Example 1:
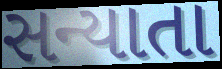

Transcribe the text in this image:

સન્યાતા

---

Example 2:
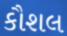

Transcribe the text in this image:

કૌશલ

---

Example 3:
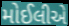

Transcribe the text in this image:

મોઈલીએ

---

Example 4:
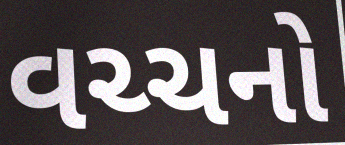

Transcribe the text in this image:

વચ્ચનો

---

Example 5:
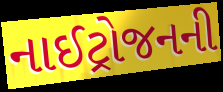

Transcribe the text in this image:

નાઈટ્રોજનની